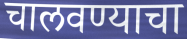
चालवण्याचा